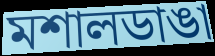
মশালডাঙা